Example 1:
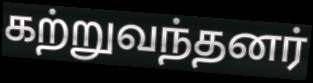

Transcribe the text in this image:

கற்றுவந்தனர்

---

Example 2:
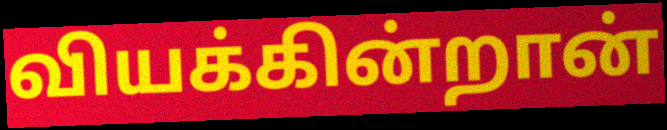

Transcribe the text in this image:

வியக்கின்றான்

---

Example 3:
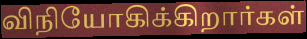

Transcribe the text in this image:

விநியோகிக்கிறார்கள்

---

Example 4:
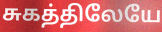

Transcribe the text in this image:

சுகத்திலேயே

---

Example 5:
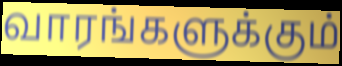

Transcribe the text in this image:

வாரங்களுக்கும்